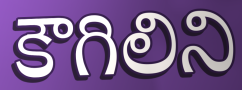
కౌగిలిని